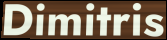
Dimitris